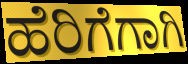
ಹೆರಿಗೆಗಾಗಿ